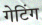
गेटिंग